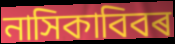
নাসিকাবিবৰ